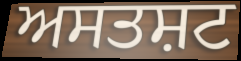
ਅਸਤਸ਼ਟ